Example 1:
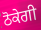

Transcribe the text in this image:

ਠੋਕੇਗੀ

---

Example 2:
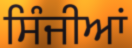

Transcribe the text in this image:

ਸਿੰਜੀਆਂ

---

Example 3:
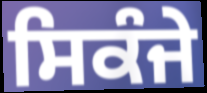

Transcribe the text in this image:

ਸਿਕੰਜੇ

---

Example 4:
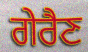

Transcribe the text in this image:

ਗੇਰੈਣ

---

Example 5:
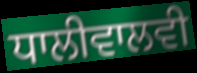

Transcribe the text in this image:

ਧਾਲੀਵਾਲਵੀ